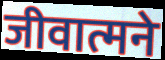
जीवात्मने